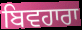
ਬਿਵਹਾਰਾ